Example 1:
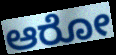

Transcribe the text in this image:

ಆರೋ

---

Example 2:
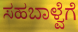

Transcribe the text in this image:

ಸಹಬಾಳ್ವೆಗೆ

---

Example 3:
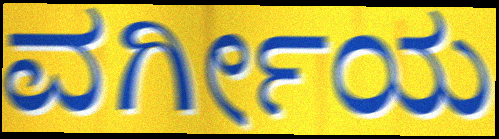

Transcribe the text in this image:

ವರ್ಗೀಯ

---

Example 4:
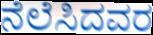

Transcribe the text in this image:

ನೆಲೆಸಿದವರ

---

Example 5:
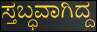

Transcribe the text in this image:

ಸ್ತಬ್ಧವಾಗಿದ್ದ